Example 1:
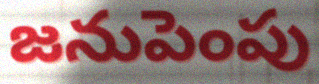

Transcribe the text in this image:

జనుపెంపు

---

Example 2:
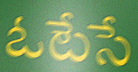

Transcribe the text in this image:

ఓటేసే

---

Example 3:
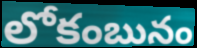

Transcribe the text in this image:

లోకంబునం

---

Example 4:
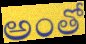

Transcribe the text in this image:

అంతో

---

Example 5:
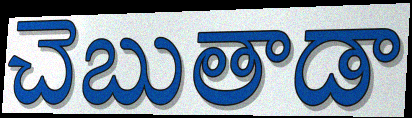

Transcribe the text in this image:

చెబుతాడా